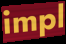
impl